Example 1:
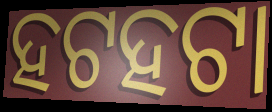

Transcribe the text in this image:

ହଟହଟା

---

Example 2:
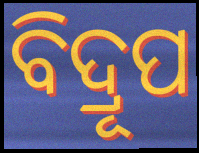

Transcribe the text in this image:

ବିଦ୍ରୂପ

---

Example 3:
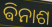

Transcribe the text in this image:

ଵିନାଶ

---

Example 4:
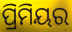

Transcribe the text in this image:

ପ୍ରିମିୟର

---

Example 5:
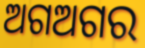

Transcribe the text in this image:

ଅଗଅଗର